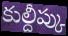
కుల్దీప్కు